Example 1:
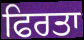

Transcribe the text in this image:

ਫਿਰਤਾ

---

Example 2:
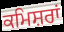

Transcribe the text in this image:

ਕਮਿਸ਼ਰਾਂ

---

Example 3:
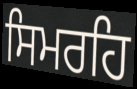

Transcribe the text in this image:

ਸਿਮਰਹਿ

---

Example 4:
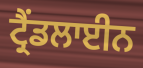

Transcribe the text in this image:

ਟ੍ਰੈਂਡਲਾਈਨ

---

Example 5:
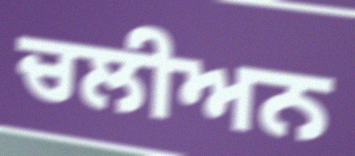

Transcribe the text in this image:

ਚਲੀਅਨ